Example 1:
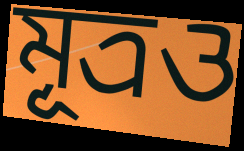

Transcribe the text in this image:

মূত্রও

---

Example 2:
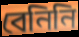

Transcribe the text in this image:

বেনিনি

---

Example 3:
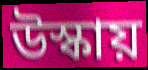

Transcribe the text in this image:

উস্কায়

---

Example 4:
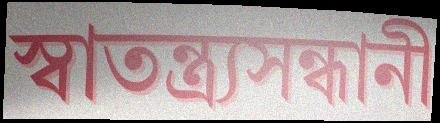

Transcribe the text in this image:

স্বাতন্ত্র্যসন্ধানী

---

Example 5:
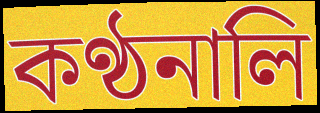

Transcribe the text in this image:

কণ্ঠনালি